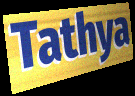
Tathya